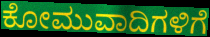
ಕೋಮುವಾದಿಗಳಿಗೆ